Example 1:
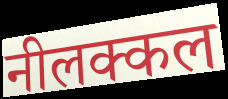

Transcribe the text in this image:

नीलक्कल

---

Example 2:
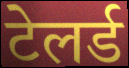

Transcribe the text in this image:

टेलर्ड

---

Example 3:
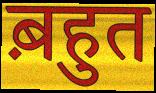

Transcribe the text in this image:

ब़हुत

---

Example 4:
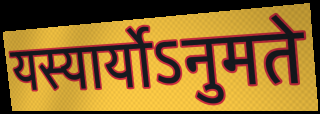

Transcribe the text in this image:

यस्यार्योऽनुमते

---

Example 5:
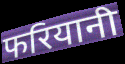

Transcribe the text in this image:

फरियानी